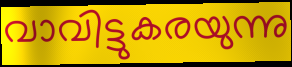
വാവിട്ടുകരയുന്നു